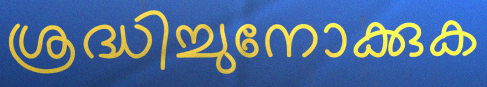
ശ്രദ്ധിച്ചുനോക്കുക